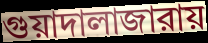
গুয়াদালাজারায়